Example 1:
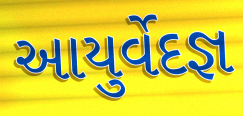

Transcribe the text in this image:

આયુર્વેદજ્ઞ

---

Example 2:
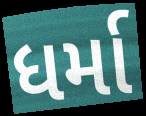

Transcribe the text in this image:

ધર્મા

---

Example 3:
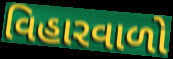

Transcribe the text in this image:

વિહારવાળો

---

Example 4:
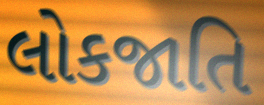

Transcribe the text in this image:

લોકજાતિ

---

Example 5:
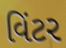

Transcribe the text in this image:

વિંટર